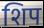
शिप